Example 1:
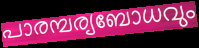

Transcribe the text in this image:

പാരമ്പര്യബോധവും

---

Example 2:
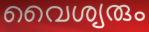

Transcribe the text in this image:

വൈശ്യരും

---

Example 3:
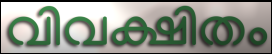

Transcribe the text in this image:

വിവക്ഷിതം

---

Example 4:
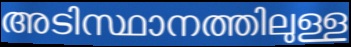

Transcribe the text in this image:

അടിസ്ഥാനത്തിലുള്ള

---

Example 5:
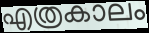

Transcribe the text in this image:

എത്രകാലം